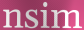
nsim